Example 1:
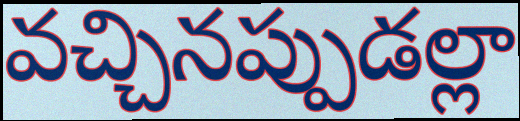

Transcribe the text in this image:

వచ్చినప్పుడల్లా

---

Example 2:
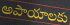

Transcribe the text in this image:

అపాయాలకు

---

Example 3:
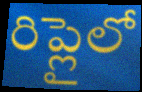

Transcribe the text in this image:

రిప్లైలో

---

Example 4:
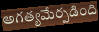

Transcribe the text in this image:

అగత్యమేర్పడింది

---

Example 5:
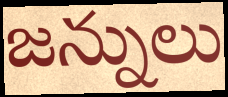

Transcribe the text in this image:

జన్నులు